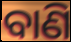
ବାଣି